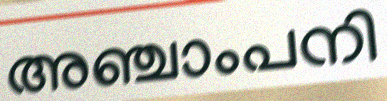
അഞ്ചാംപനി